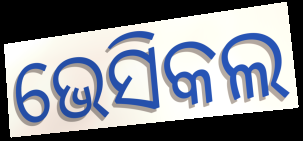
ଭେସିକଲ